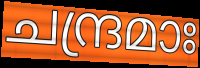
ചന്ദ്രമാഃ